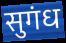
सुगंध